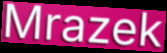
Mrazek